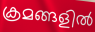
ക്രമങ്ങളിൽ